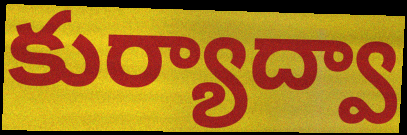
కుర్యాద్వా